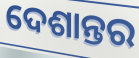
ଦେଶାନ୍ତର